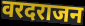
वरदराजन